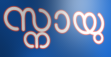
സ്നായു